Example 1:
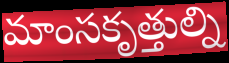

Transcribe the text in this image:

మాంసకృత్తుల్ని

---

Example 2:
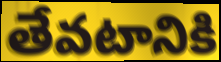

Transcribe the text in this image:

తేవటానికి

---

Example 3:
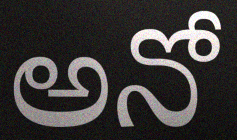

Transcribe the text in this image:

అనో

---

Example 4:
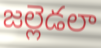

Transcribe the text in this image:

జల్లెడలా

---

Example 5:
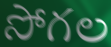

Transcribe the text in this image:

సోగల